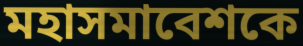
মহাসমাবেশকে